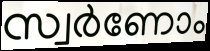
സ്വർണോം